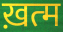
ख़त्‍म